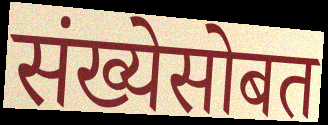
संख्येसोबत